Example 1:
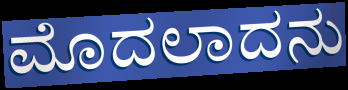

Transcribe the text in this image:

ಮೊದಲಾದನು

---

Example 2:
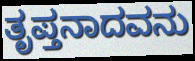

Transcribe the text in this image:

ತೃಪ್ತನಾದವನು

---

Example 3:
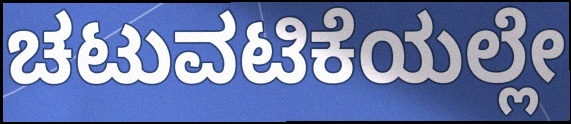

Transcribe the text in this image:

ಚಟುವಟಿಕೆಯಲ್ಲೇ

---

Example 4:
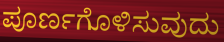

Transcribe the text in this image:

ಪೂರ್ಣಗೊಳಿಸುವುದು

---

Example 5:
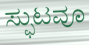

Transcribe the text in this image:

ಸ್ಫುಟವೂ